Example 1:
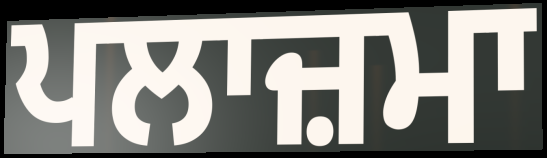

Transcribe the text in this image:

ਪਲਾਜ਼ਮਾ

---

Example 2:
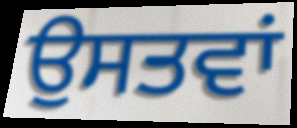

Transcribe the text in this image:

ਉਸਤਵਾਂ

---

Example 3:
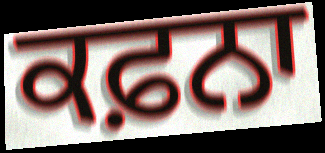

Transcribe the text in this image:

ਕਫ਼ਨਾ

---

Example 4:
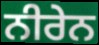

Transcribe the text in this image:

ਨੀਰੇਨ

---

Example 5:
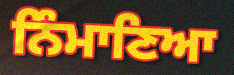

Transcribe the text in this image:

ਨਿੰਮਾਣਿਆ